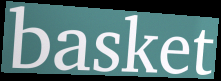
basket